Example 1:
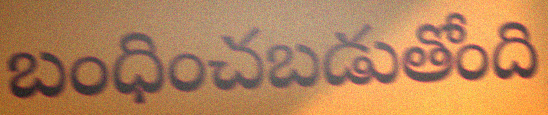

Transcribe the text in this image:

బంధించబడుతోంది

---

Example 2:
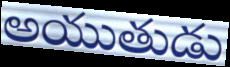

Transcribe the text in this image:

అయుతుడు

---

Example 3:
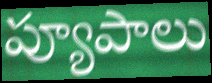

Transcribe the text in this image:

ప్యూపాలు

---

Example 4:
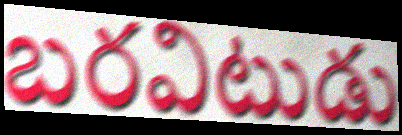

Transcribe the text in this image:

బరవిటుడు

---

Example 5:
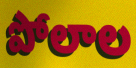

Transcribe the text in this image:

పోలాల